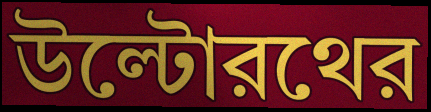
উল্টোরথের